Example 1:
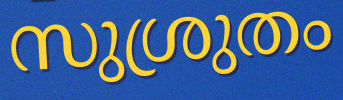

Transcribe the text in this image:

സുശ്രുതം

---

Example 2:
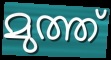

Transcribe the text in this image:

മുത്ത്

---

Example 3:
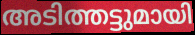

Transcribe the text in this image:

അടിത്തട്ടുമായി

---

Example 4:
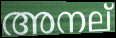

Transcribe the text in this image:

അനല്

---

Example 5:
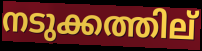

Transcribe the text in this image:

നടുക്കത്തില്